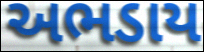
અભડાય